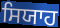
ਸਿਯਾਹ